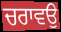
ਚਰਾਵਉ